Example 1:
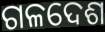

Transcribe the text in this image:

ଗଳଦେଶ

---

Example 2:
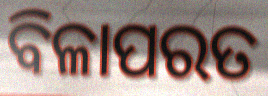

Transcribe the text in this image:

ବିଳାପରତ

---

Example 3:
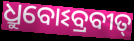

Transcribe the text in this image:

ଧ୍ରୁବୋଽବ୍ରବୀତ୍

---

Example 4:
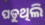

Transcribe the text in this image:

ପଡୁଥିଲି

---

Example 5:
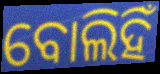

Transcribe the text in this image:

ବୋଲିହିଁ